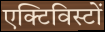
एक्टिविस्टों